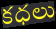
కధలు